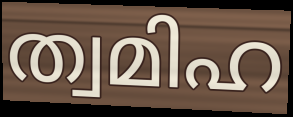
ത്വമിഹ